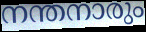
നന്തനാരും